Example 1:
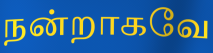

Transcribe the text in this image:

நன்றாகவே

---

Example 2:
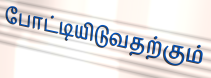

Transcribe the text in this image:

போட்டியிடுவதற்கும்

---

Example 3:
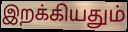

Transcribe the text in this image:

இறக்கியதும்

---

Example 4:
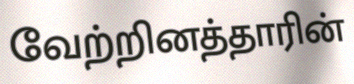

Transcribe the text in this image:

வேற்றினத்தாரின்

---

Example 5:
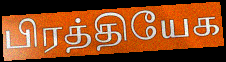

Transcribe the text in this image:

பிரத்தியேக